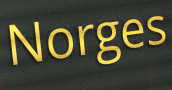
Norges